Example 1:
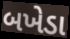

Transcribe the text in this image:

બખેડા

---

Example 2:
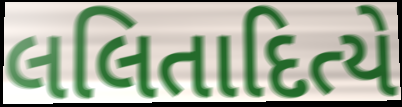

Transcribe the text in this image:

લલિતાદિત્યે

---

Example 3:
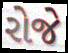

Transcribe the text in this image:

રોજે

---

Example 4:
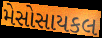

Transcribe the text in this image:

મેસોસાયકલ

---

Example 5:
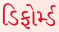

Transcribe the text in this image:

ડિફોર્મ્ડ